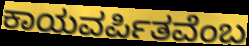
ಕಾಯವರ್ಪಿತವೆಂಬ